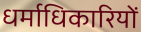
धर्माधिकारियों